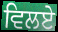
ਵਿਲਏ